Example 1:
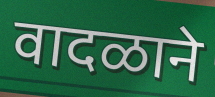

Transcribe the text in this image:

वादळाने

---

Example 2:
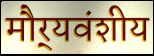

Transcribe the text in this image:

मौर्यवंशीय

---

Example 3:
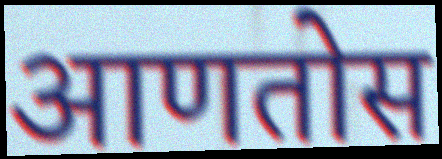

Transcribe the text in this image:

आणतोस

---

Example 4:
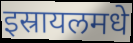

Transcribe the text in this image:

इस्रायलमधे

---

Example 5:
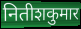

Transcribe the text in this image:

नितीशकुमार